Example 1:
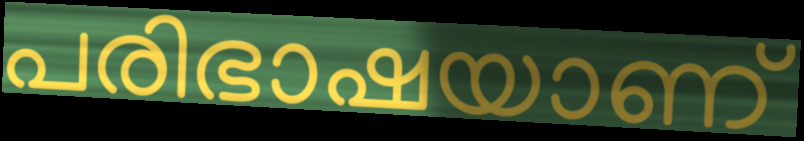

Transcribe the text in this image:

പരിഭാഷയാണ്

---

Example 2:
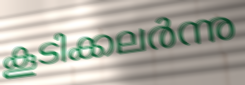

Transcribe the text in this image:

കൂടിക്കലർന്നു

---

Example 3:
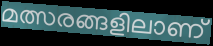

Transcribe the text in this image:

മത്സരങ്ങളിലാണ്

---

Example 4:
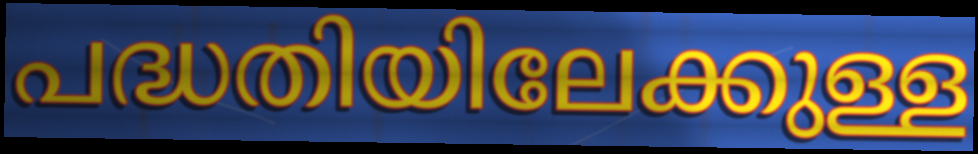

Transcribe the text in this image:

പദ്ധതിയിലേക്കുള്ള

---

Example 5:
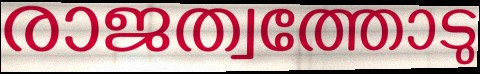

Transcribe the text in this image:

രാജത്വത്തോടു